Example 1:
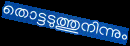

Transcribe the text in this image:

തൊട്ടടുത്തുനിന്നും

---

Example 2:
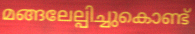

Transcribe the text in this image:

മങ്ങലേല്പിച്ചുകൊണ്ട്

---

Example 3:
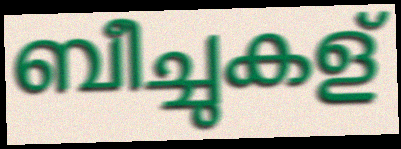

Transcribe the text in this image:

ബീച്ചുകള്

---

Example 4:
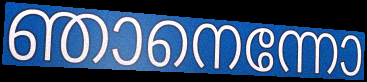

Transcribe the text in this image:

ഞാനെന്നോ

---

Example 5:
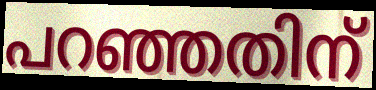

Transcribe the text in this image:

പറഞ്ഞതിന്